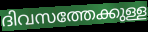
ദിവസത്തേക്കുള്ള